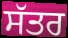
ਸੱਤਰ